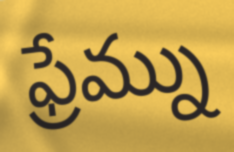
ఫ్రేమ్ను